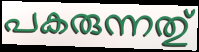
പകരുന്നതു്